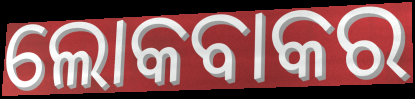
ଲୋକବାକର